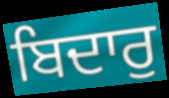
ਬਿਦਾਰੁ